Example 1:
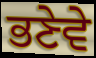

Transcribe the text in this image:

ਭਣੇਵੇ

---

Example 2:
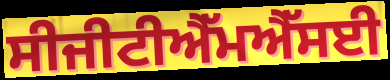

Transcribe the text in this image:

ਸੀਜੀਟੀਐੱਮਐੱਸਈ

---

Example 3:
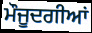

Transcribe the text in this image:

ਮੌਜੂਦਗੀਆਂ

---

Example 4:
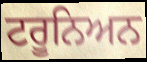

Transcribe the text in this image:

ਟਰੂਨਿਅਨ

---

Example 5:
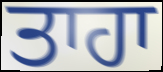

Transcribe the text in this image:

ਤਾਹਾ